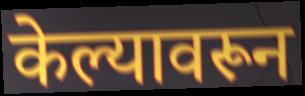
केल्यावरून